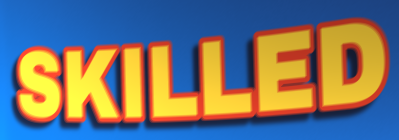
SKILLED